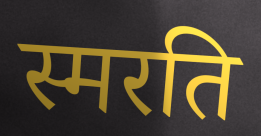
स्मरति